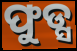
ଫୁଡ୍ସ